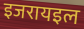
इजरायइल